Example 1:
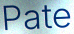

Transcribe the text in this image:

Pate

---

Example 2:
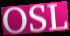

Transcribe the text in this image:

OSL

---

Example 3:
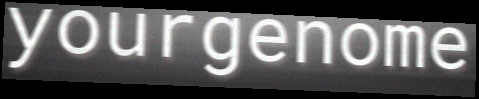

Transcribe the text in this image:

yourgenome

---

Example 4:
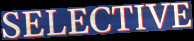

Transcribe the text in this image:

SELECTIVE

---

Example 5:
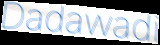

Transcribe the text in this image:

Dadawadi